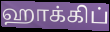
ஹாக்கிப்